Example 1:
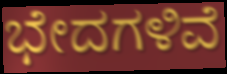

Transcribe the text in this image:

ಭೇದಗಳಿವೆ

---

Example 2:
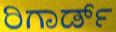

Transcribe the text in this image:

ರಿಗಾರ್ಡ್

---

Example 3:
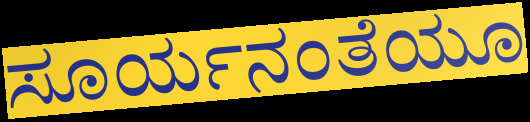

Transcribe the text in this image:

ಸೂರ್ಯನಂತೆಯೂ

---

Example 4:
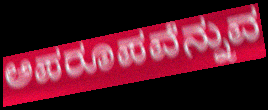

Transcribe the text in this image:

ಅಪರೂಪವೆನ್ನುವ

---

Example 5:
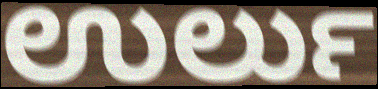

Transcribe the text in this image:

ಉರ್ಲು